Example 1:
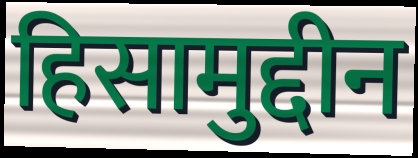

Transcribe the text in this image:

हिसामुद्दीन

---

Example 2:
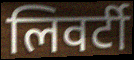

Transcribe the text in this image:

लिवर्टी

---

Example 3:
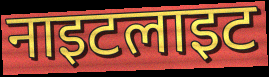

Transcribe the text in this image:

नाइटलाइट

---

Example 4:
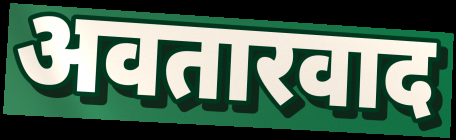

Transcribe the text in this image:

अवतारवाद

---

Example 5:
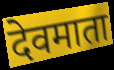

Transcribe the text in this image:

देवमाता